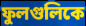
ফুলগুলিকে